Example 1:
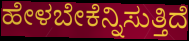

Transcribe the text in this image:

ಹೇಳಬೇಕೆನ್ನಿಸುತ್ತಿದೆ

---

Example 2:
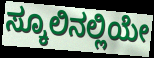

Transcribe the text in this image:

ಸ್ಕೂಲಿನಲ್ಲಿಯೇ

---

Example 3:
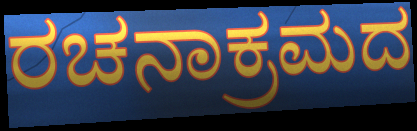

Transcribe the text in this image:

ರಚನಾಕ್ರಮದ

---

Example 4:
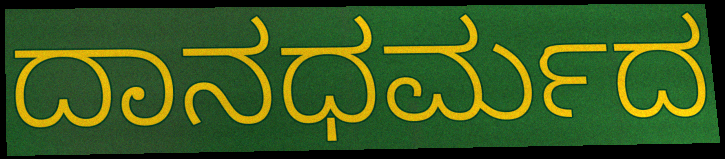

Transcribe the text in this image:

ದಾನಧರ್ಮದ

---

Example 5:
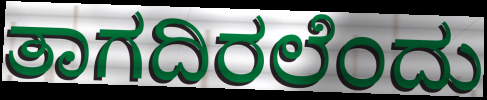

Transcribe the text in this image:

ತಾಗದಿರಲೆಂದು